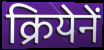
क्रियेनें